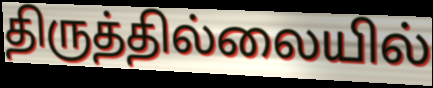
திருத்தில்லையில்